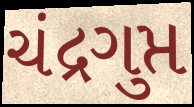
ચંદ્રગુપ્ત